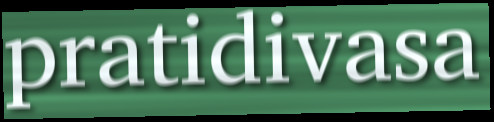
pratidivasa